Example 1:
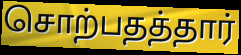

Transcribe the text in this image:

சொற்பதத்தார்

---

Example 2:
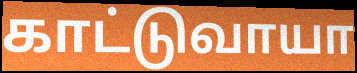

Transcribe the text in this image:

காட்டுவாயா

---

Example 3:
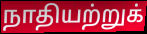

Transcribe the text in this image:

நாதியற்றுக்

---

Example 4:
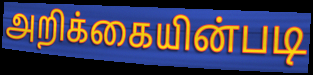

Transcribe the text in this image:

அறிக்கையின்படி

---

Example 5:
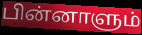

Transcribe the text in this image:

பின்னாளும்